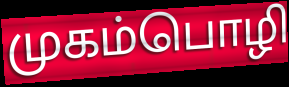
முகம்பொழி